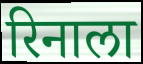
रिनाला